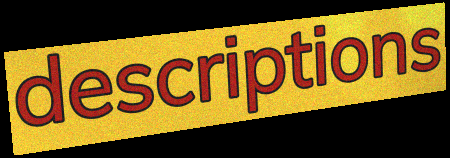
descriptions